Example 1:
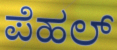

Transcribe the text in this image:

ಪೆಹಲ್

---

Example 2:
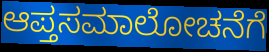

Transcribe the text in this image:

ಆಪ್ತಸಮಾಲೋಚನೆಗೆ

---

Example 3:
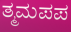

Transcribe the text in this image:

ತ್ಮಮಪಪ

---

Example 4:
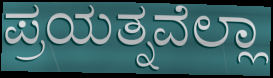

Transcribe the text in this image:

ಪ್ರಯತ್ನವೆಲ್ಲಾ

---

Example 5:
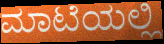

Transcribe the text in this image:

ಮಾಟೆಯಲ್ಲಿ